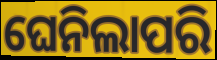
ଘେନିଲାପରି